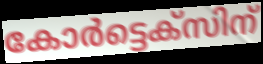
കോർട്ടെക്സിന്